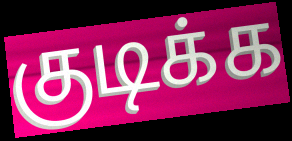
குடிக்க